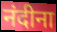
नंदीना